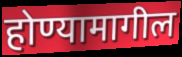
होण्यामागील